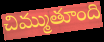
చిమ్ముతూంది